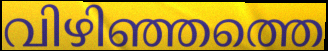
വിഴിഞ്ഞത്തെ